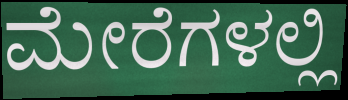
ಮೇರೆಗಳಲ್ಲಿ